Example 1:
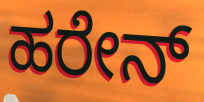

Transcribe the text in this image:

ಹರೇನ್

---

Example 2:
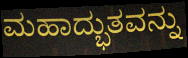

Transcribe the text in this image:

ಮಹಾದ್ಭುತವನ್ನು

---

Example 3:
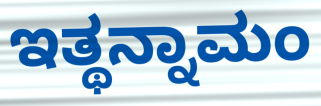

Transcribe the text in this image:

ಇತ್ಥನ್ನಾಮಂ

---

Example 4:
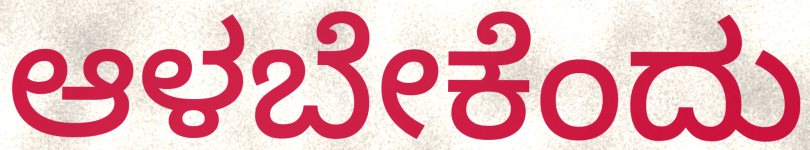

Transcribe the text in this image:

ಆಳಬೇಕೆಂದು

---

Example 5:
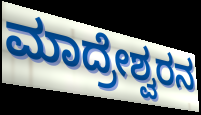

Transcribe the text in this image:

ಮಾದ್ರೇಶ್ವರನ